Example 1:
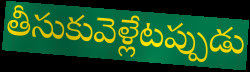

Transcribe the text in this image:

తీసుకువెళ్లేటప్పుడు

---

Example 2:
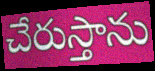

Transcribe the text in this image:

చేరుస్తాను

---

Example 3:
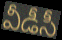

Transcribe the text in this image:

వీడీసీ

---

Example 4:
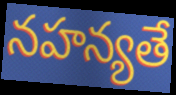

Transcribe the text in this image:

నహన్యతే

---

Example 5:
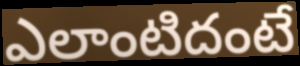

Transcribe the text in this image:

ఎలాంటిదంటే